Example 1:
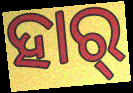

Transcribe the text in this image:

ହାର୍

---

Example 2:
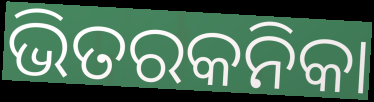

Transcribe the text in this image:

ଭିତରକନିକା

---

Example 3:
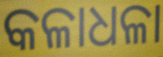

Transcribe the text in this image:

କଳାଧଳା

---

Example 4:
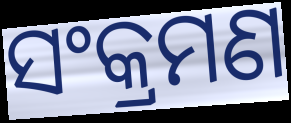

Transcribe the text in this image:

ସଂକ୍ରମଣ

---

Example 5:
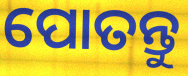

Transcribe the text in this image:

ପୋତନ୍ତୁ